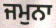
ਜਮੁਨਾ